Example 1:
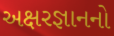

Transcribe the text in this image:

અક્ષરજ્ઞાનનો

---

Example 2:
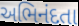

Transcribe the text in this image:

અભિનંદતા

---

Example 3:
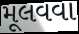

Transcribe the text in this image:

મૂલવવા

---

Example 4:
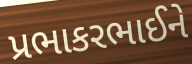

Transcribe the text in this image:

પ્રભાકરભાઈને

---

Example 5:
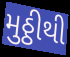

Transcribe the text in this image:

મુઠ્ઠીથી